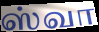
ஸ்வா